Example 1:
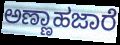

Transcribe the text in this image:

ಅಣ್ಣಾಹಜಾರೆ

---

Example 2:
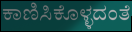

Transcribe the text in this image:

ಕಾಣಿಸಿಕೊಳ್ಳದಂತೆ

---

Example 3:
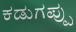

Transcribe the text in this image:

ಕಡುಗಪ್ಪು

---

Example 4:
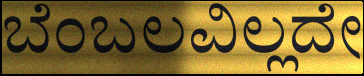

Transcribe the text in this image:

ಬೆಂಬಲವಿಲ್ಲದೇ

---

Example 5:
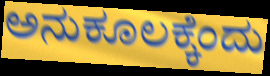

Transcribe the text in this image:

ಅನುಕೂಲಕ್ಕೆಂದು